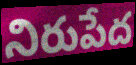
నిరుపేద